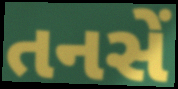
તનસેં